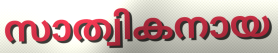
സാത്വികനായ